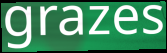
grazes